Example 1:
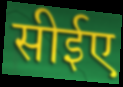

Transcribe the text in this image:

सीईए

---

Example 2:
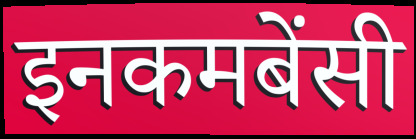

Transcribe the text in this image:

इनकमबेंसी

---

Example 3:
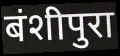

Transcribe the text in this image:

बंशीपुरा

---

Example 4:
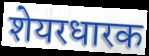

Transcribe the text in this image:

शेयरधारक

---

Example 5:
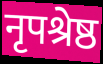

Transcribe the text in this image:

नृपश्रेष्ठ